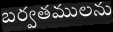
బర్వతములను